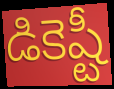
డికెష్టీ